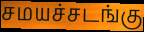
சமயச்சடங்கு